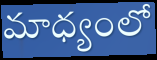
మాధ్యంలో